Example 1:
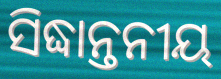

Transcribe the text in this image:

ସିଦ୍ଧାନ୍ତନୀୟ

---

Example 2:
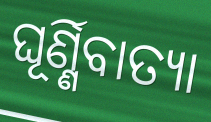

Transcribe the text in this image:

ଘୂର୍ଣ୍ଣିବାତ୍ୟା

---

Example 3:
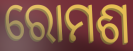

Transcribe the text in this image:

ରୋମଶ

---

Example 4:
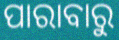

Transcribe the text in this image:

ପାରାବାରୁ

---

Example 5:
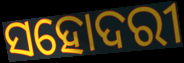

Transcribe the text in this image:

ସହୋଦରୀ